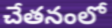
చేతనంలో